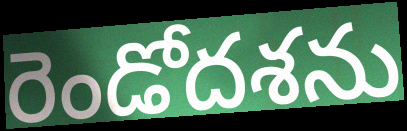
రెండోదశను